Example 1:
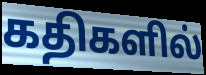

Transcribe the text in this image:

கதிகளில்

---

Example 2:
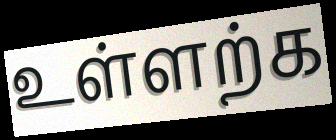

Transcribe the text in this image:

உள்ளற்க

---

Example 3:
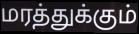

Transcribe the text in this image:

மரத்துக்கும்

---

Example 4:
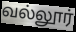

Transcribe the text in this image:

வல்லூர்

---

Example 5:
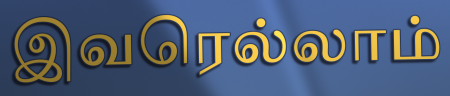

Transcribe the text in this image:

இவரெல்லாம்